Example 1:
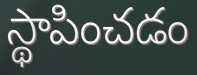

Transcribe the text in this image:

స్థాపించడం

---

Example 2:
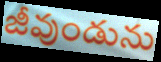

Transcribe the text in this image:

జీవుండును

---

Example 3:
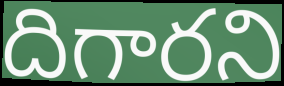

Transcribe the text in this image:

దిగారని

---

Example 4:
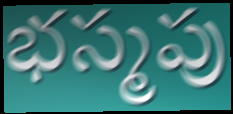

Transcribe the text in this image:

భస్మపు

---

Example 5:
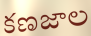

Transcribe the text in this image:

కణజాల